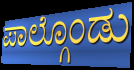
ಪಾಲ್ಗೊಂಡು